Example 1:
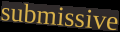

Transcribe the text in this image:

submissive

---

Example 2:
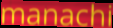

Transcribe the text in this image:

manachi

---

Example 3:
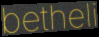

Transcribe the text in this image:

betheli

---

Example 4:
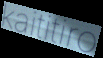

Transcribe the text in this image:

kaititiro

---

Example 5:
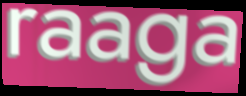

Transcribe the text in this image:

raaga